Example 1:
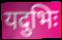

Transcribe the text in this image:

यदुभिः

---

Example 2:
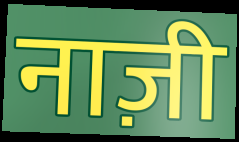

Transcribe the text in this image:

नाज़ी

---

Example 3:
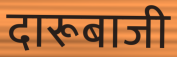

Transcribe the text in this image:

दारूबाजी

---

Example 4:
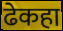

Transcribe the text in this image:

ढेकहा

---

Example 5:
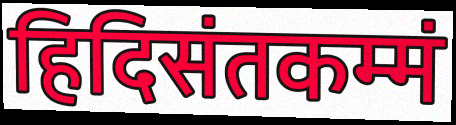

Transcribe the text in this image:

हिदिसंतकम्मं